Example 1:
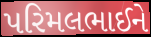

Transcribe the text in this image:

પરિમલભાઈને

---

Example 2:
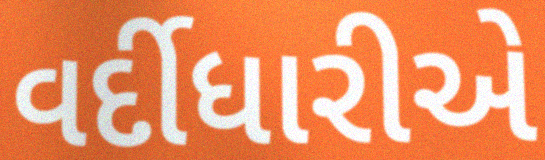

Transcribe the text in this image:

વર્દીધારીએ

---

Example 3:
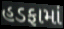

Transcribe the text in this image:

હડફામાં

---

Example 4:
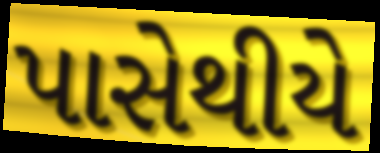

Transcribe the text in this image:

પાસેથીયે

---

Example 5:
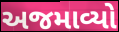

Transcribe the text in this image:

અજમાવ્યો